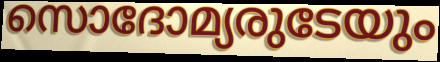
സൊദോമ്യരുടേയും